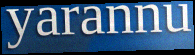
yarannu